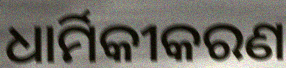
ଧାର୍ମିକୀକରଣ